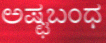
ಅಷ್ಟಬಂಧ